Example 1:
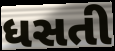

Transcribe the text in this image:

ધસતી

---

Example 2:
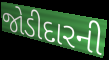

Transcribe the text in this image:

જોડીદારની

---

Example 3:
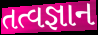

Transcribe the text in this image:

તત્વજ્ઞાન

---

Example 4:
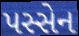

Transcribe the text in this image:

પસ્સેન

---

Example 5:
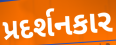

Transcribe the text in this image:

પ્રદર્શનકાર